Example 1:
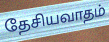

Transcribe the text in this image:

தேசியவாதம்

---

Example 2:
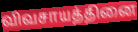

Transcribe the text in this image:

விவசாயத்தினை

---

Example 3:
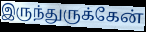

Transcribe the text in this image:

இருந்துருக்கேன்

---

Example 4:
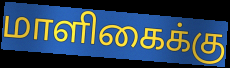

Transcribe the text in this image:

மாளிகைக்கு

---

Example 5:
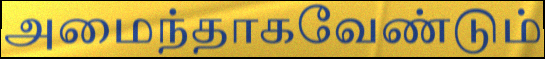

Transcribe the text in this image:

அமைந்தாகவேண்டும்